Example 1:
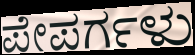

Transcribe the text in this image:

ಪೇಪರ್ಗಳು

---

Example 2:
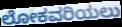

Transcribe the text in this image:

ಲೋಕವರಿಯಲು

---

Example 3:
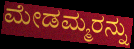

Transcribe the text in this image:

ಮೇಡಮ್ಮರನ್ನು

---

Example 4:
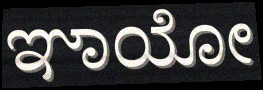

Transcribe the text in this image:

ಞಾಯೋ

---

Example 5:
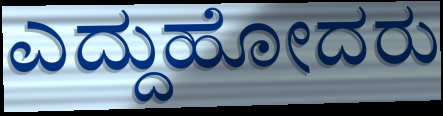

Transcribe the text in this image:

ಎದ್ದುಹೋದರು